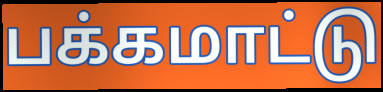
பக்கமாட்டு